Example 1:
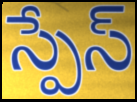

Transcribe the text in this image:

స్పేస్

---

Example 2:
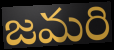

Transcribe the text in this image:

జమరి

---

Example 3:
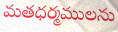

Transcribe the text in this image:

మతధర్మములను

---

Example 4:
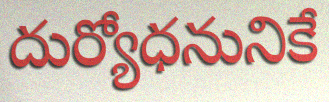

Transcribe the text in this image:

దుర్యోధనునికే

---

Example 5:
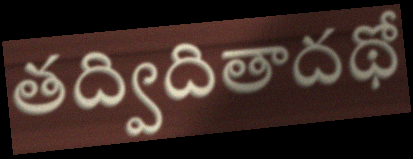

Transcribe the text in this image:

తద్విదితాదథో